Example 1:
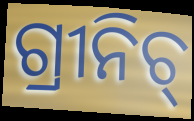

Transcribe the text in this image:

ଗ୍ରୀନିଚ୍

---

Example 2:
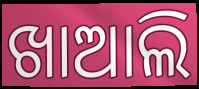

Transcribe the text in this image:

ଖାଆଲି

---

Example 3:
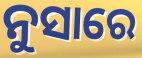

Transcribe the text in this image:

ନୁସାରେ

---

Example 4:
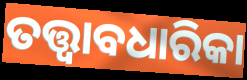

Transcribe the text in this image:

ତତ୍ତ୍ୱାବଧାରିକା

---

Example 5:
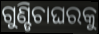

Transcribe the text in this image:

ଗୁଣ୍ଡିଚାଘରକୁ